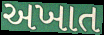
અખાત